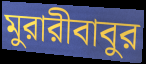
মুরারীবাবুর